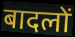
बादलों